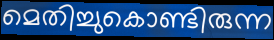
മെതിച്ചുകൊണ്ടിരുന്ന